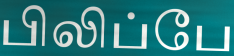
பிலிப்பே